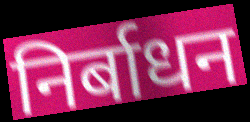
निर्बाधन